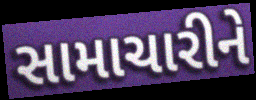
સામાચારીને